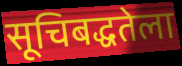
सूचिबद्धतेला